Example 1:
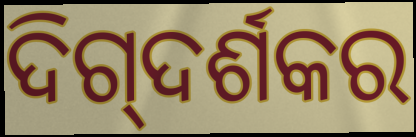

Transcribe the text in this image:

ଦିଗ୍‍ଦର୍ଶକର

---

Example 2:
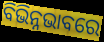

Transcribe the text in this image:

ବିଭିନ୍ନଭାବରେ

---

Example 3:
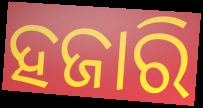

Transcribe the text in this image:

ହଜାରି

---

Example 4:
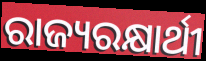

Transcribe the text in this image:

ରାଜ୍ୟରକ୍ଷାର୍ଥୀ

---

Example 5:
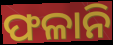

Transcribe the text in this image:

ଫଳାନି